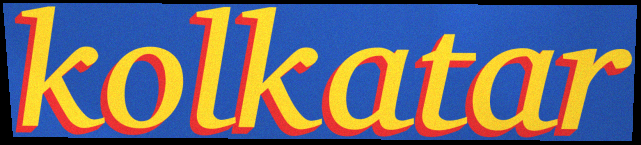
kolkatar